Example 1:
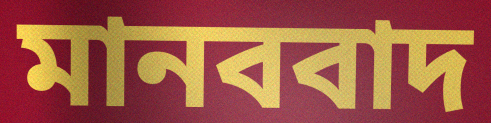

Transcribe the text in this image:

মানববাদ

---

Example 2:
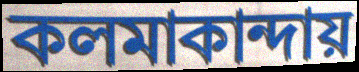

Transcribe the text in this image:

কলমাকান্দায়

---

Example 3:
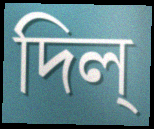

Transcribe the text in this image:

দিল্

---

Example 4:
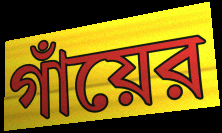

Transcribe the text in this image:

গাঁয়ের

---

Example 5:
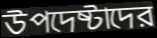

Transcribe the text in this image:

উপদেষ্টাদের